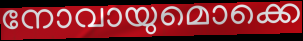
നോവായുമൊക്കെ